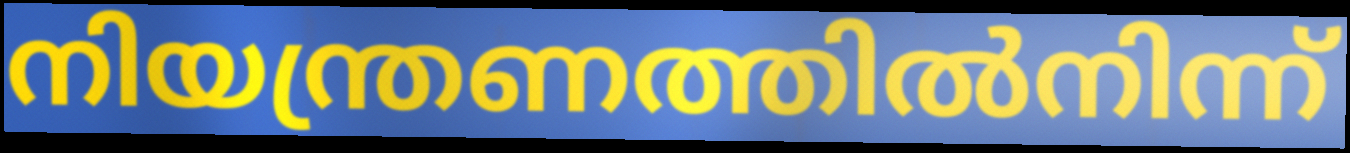
നിയന്ത്രണത്തിൽനിന്ന്